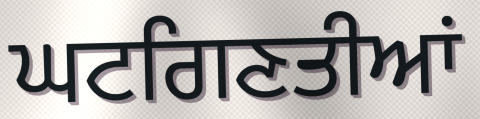
ਘਟਗਿਣਤੀਆਂ